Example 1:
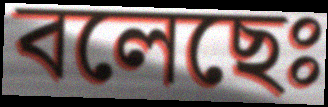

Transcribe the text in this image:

বলেছেঃ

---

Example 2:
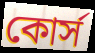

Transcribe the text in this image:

কোর্স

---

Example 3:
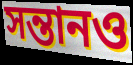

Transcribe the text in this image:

সন্তানও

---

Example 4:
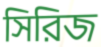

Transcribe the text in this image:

সিরিজ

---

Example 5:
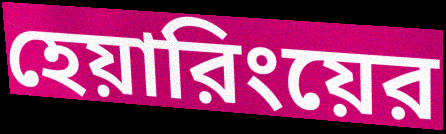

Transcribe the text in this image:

হেয়ারিংয়ের